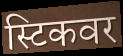
स्टिकवर